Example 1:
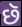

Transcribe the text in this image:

છૅ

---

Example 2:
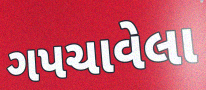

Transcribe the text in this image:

ગપચાવેલા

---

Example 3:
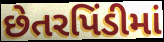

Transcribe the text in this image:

છેતરપિંડીમાં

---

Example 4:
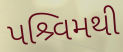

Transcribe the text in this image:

પશ્ર્વિમથી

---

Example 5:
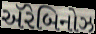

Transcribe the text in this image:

ઍરેબિનોઝ